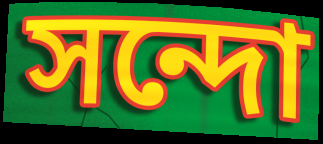
সন্দো